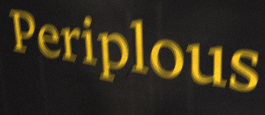
Periplous